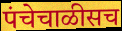
पंचेचाळीसच